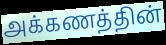
அக்கணத்தின்